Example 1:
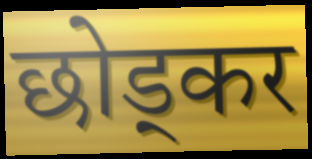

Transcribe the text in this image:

छोड्कर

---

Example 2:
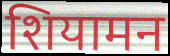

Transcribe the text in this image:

शियामन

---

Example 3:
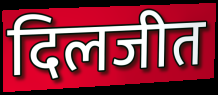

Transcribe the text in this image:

दिलजीत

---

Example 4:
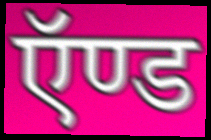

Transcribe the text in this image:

ऍण्ड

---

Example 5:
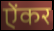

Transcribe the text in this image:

ऐंकर